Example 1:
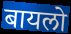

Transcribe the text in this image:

बायलो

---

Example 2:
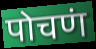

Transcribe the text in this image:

पोचणं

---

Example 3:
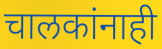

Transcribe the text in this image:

चालकांनाही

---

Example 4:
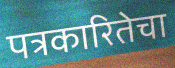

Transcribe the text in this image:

पत्रकारितेचा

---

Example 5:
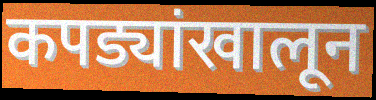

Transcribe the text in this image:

कपड्यांखालून